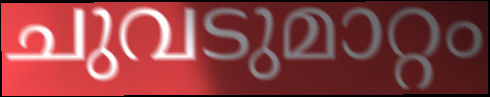
ചുവടുമാറ്റം